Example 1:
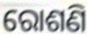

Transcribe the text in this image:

ରୋଶଣି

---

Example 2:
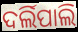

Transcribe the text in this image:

ଦର୍ଲିପାଲି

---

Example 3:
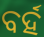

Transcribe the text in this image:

ବର୍ହ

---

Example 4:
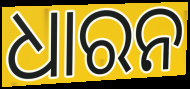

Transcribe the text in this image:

ଧାରନ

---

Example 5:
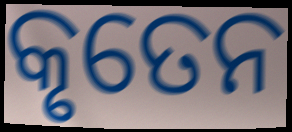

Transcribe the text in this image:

କୃତେନ